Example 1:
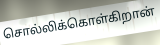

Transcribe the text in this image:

சொல்லிக்கொள்கிறான்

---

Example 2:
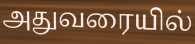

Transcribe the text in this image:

அதுவரையில்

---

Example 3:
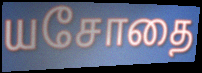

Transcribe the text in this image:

யசோதை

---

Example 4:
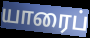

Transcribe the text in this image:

யாரைப்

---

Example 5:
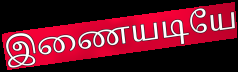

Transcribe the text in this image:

இணையடியே